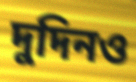
দুদিনও